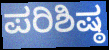
ಪರಿಶಿಷ್ಠ